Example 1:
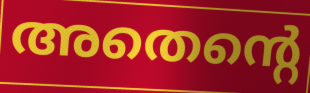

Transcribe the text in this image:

അതെന്റെ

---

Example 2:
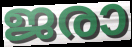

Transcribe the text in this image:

ജരാ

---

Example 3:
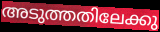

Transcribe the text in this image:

അടുത്തതിലേക്കു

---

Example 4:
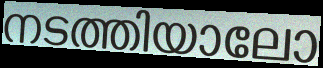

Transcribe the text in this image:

നടത്തിയാലോ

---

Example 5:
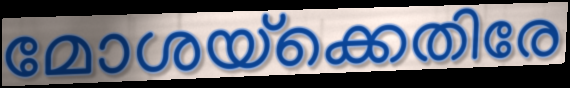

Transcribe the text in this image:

മോശയ്‌ക്കെതിരേ